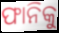
ଫାନିକୁ